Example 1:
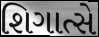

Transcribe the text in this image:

શિગાત્સે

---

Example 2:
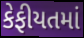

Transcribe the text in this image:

કેફીયતમાં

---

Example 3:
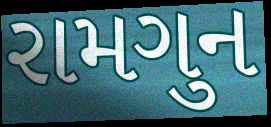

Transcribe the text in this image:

રામગુન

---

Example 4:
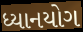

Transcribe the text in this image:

ધ્યાનયોગ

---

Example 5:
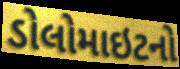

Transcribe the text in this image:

ડોલોમાઇટનો